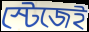
স্টেজেই